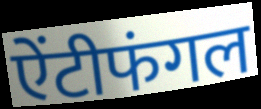
ऐंटीफंगल